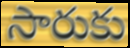
సారుకు